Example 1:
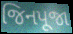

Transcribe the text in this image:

જિનપૂજા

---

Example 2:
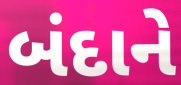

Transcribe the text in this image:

બંદાને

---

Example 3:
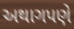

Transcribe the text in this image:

અથાગપણે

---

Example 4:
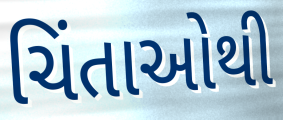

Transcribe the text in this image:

ચિંતાઓથી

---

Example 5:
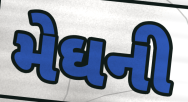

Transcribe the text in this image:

મેઘની